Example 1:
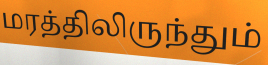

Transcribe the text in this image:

மரத்திலிருந்தும்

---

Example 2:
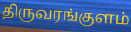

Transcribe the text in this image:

திருவரங்குளம்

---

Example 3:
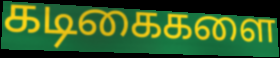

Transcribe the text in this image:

கடிகைகளை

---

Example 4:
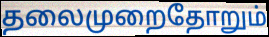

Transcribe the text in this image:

தலைமுறைதோறும்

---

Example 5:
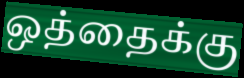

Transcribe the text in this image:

ஒத்தைக்கு